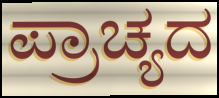
ಪ್ರಾಚ್ಯದ